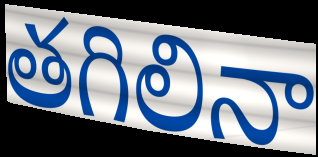
తగిలినా